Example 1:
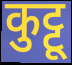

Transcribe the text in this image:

कुट्टू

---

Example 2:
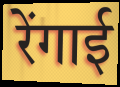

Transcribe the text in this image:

रेंगाई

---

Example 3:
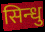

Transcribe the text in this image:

सिन्‍धु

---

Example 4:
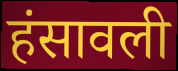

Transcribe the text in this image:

हंसावली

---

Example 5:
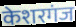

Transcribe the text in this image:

केशरगंज